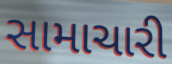
સામાચારી